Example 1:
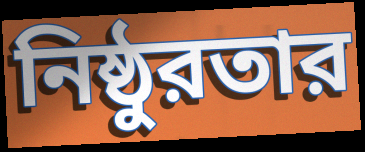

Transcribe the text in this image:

নিষ্ঠুরতার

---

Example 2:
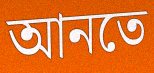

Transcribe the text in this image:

আনতে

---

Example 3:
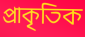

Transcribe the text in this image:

প্রাকৃতিক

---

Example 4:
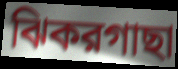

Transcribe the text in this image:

ঝিকরগাছা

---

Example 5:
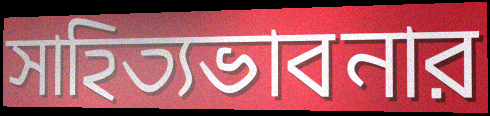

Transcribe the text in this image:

সাহিত্যভাবনার